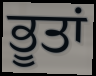
ਭੂਤਾਂ